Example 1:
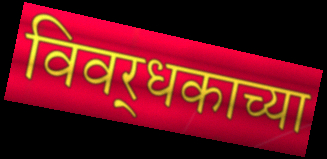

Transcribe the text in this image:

विवर्धकाच्या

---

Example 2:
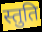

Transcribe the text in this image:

स्तुति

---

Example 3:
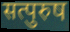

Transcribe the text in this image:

सत्पुरुष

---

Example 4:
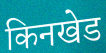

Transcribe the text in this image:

किनखेड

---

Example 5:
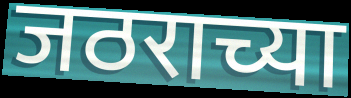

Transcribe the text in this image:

जठराच्या